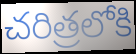
చరిత్రలోకి